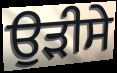
ਉੜੀਸੇ